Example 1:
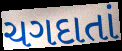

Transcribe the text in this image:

ચગદાતાં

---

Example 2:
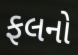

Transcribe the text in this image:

ફલનો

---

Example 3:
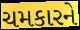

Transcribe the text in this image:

ચમકારને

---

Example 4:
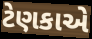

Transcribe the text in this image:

ટેણકાએ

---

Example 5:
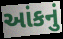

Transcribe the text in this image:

આંકનું